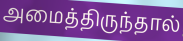
அமைத்திருந்தால்